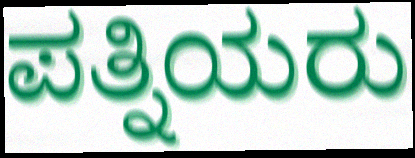
ಪತ್ನಿಯರು